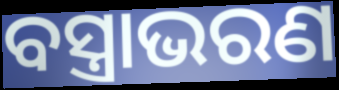
ବସ୍ତ୍ରାଭରଣ